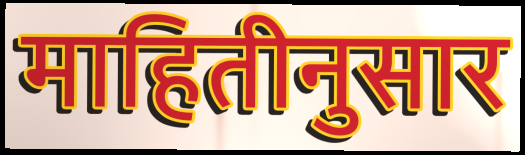
माहितीनुसार